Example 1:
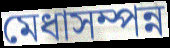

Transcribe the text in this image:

মেধাসম্পন্ন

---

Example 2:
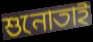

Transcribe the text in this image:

শুনোতাই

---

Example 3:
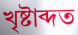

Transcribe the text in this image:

খৃষ্টাব্দত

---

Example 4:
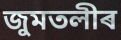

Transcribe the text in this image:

জুমতলীৰ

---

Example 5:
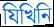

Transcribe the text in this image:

যিখিনি